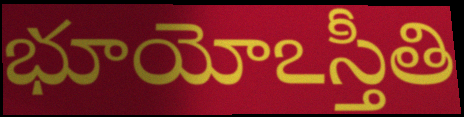
భూయోఽస్తీతి